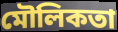
মৌলিকতা